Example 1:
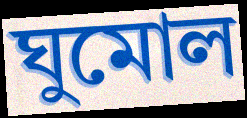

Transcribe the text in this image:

ঘুমোল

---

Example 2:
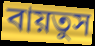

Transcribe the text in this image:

বায়তুস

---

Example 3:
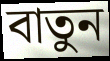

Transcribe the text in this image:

বাতুন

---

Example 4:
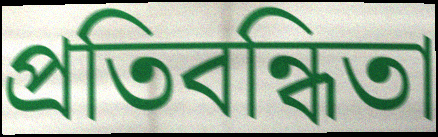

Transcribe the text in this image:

প্রতিবন্ধিতা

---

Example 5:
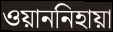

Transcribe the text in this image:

ওয়াননিহায়া